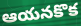
ఆయనకొక